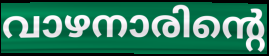
വാഴനാരിന്റെ